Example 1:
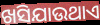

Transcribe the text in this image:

ଖସିଯାଉଥାଏ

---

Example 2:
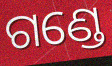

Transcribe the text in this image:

ଗଣ୍ଡେ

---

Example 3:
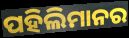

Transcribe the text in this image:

ପହିଲିମାନର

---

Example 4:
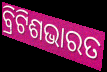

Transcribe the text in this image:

ବ୍ରିଟିଶଭାରତ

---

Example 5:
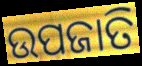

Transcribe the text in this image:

ଉପଜାତି